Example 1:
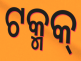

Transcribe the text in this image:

ଟକ୍ମକ୍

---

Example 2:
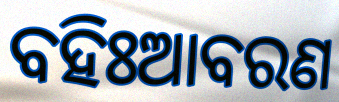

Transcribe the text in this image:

ବହିଃଆବରଣ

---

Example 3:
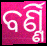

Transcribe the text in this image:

ବର୍ଣ୍ଣି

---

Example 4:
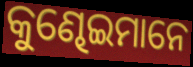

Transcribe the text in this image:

କୁଣ୍ଢେଇମାନେ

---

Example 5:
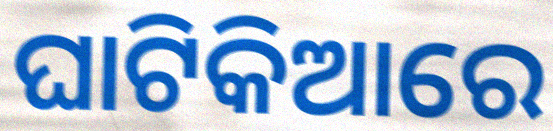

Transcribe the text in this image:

ଘାଟିକିଆରେ